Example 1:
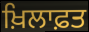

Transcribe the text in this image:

ਖ਼ਿਲਾਫ਼ਤ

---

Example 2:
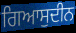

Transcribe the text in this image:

ਗਿਆਸੁਦੀਨ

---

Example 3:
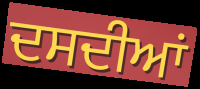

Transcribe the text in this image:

ਦਸਦੀਆਂ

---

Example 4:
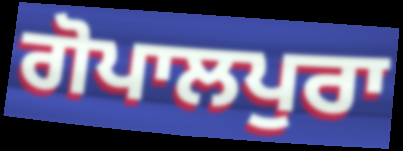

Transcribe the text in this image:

ਗੋਪਾਲਪੁਰਾ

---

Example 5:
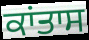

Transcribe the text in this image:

ਕਾਂਤਾਸ